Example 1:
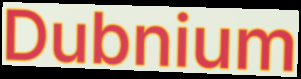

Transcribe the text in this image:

Dubnium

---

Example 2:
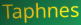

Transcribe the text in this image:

Taphnes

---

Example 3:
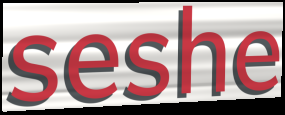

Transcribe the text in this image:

seshe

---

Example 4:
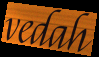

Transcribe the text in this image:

vedah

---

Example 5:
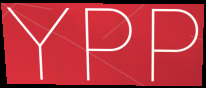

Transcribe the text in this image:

YPP